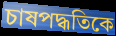
চাষপদ্ধতিকে